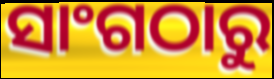
ସାଂଗଠାରୁ